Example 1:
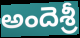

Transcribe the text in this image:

అందెశ్రీ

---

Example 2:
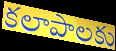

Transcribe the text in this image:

కలాపాలకు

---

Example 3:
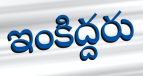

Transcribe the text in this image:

ఇంకిద్దరు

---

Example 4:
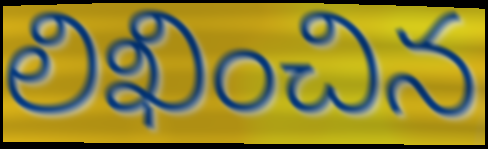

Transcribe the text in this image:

లిఖించిన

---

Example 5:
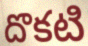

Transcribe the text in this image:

దొకటి